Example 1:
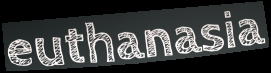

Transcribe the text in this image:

euthanasia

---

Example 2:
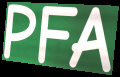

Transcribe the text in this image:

PFA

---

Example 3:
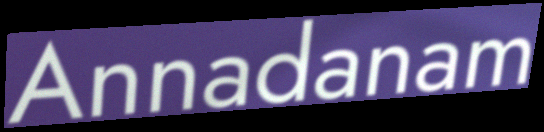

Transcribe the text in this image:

Annadanam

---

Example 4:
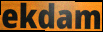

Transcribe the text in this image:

ekdam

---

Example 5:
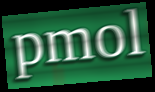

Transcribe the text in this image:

pmol